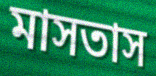
মাসতাস